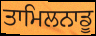
ਤਾਮਿਲਨਾਡੂ